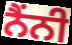
ਨੈਂਨੀ